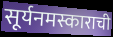
सूर्यनमस्काराची